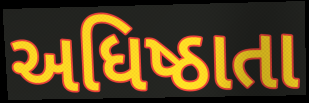
અધિષ્ઠાતા